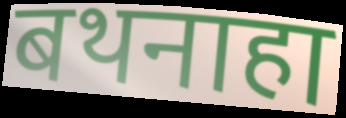
बथनाहा